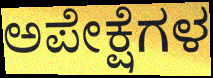
ಅಪೇಕ್ಷೆಗಳ